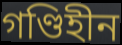
গণ্ডিহীন